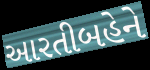
આરતીબહેને